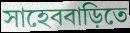
সাহেববাড়িতে